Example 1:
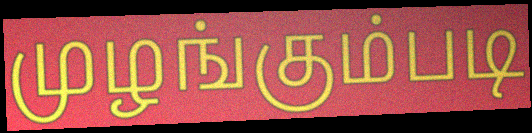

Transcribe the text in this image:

முழங்கும்படி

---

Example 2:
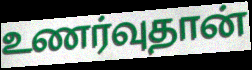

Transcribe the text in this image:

உணர்வுதான்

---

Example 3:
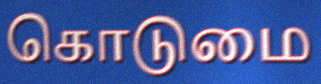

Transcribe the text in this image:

கொடுமை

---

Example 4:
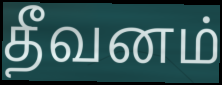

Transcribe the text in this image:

தீவனம்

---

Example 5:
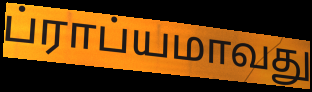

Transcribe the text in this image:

ப்ராப்யமாவது